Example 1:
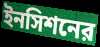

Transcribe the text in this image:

ইনসিশনের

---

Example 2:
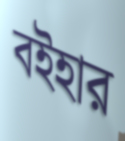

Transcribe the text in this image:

বইহার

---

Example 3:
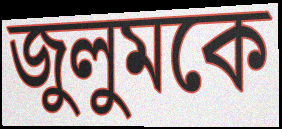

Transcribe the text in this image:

জুলুমকে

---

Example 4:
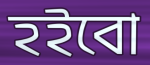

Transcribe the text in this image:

হইবো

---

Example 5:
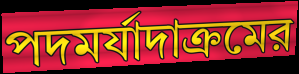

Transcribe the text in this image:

পদমর্যাদাক্রমের